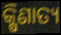
କ୍ଷିଣାତ୍ୟ